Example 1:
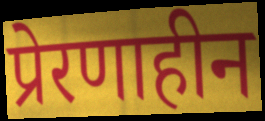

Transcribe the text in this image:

प्रेरणाहीन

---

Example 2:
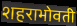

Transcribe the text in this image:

शहराभोवती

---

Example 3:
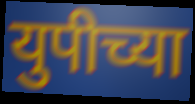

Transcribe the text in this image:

युपीच्या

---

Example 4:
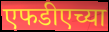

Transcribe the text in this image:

एफडीएच्या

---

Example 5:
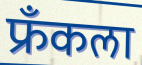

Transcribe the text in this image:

फ्रॅंकला